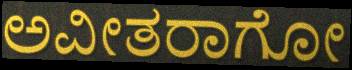
ಅವೀತರಾಗೋ